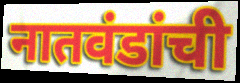
नातवंडांची